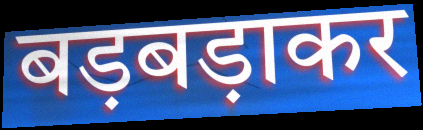
बड़बड़ाकर